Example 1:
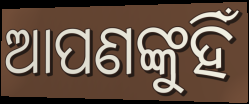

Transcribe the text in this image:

ଆପଣଙ୍କୁହିଁ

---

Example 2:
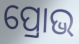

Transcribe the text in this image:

ପ୍ରୋଭ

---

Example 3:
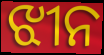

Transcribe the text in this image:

ଝୀନ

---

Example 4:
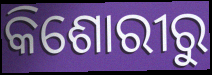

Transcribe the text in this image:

କିଶୋରୀରୁ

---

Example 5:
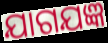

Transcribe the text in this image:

ଯାଗଯଜ୍ଞ